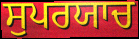
ਸੁਪਰਯਾਚ